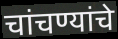
चांचण्यांचे